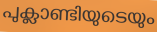
പുക്ലാണ്ടിയുടെയും